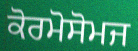
ਕੋਰਮੋਸੋਮਜ